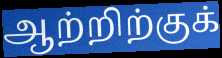
ஆற்றிற்குக்